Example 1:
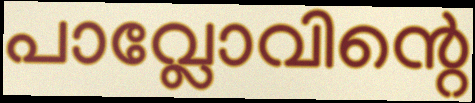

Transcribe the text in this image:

പാവ്ലോവിന്റെ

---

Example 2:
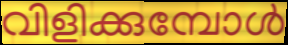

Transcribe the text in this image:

വിളിക്കുമ്പോൾ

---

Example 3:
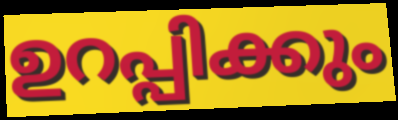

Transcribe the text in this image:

ഉറപ്പിക്കും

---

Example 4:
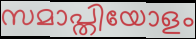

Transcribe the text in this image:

സമാപ്തിയോളം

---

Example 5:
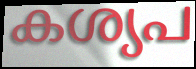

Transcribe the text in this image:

കശ്യപ